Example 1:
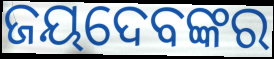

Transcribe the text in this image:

ଜୟଦେବଙ୍କର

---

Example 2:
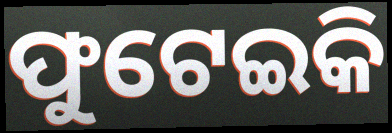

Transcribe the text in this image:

ଫୁଟେଇକି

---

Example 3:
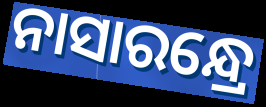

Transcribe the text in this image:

ନାସାରନ୍ଧ୍ରେ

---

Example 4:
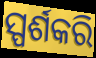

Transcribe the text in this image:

ସ୍ପର୍ଶକରି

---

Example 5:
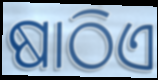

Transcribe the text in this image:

ଷାଠିଏ